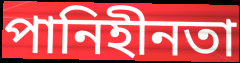
পানিহীনতা